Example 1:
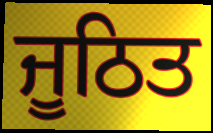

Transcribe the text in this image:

ਜੂਠਿਤ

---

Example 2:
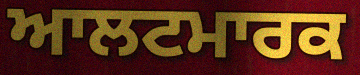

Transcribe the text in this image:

ਆਲਟਮਾਰਕ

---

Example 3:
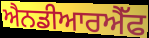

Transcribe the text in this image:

ਐਨਡੀਆਰਐੱਫ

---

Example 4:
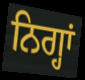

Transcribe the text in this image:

ਨਿਗ੍ਹਾਂ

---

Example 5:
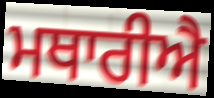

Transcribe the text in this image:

ਮਥਾਰੀਐ